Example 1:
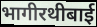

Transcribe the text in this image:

भागीरथीबाई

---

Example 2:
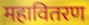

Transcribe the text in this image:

महावितरण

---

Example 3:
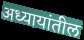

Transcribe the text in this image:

अध्यायांतील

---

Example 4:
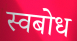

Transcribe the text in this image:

स्वबोध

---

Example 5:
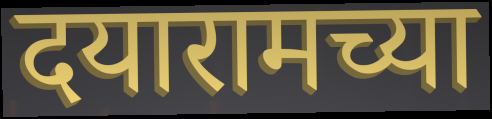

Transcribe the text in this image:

दयारामच्या